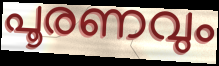
പൂരണവും